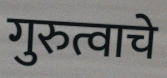
गुरुत्वाचे